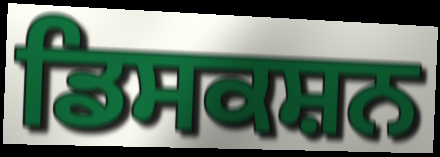
ਡਿਸਕਸ਼ਨ